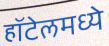
हॉटेलमध्ये